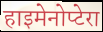
हाइमेनोप्टेरा